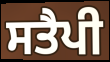
ਸਤੈਪੀ